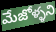
మేజోళ్ళని